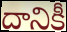
దానికీ